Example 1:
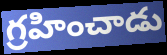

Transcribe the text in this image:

గ్రహించాడు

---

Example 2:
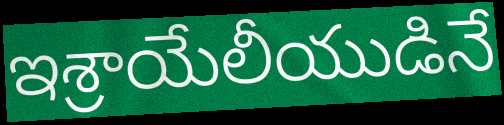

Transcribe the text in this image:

ఇశ్రాయేలీయుడినే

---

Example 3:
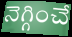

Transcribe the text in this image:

నెగ్గించే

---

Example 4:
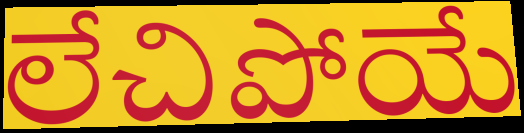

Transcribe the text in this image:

లేచిపోయే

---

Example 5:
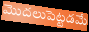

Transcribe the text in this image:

మొదలుపెట్టడమే